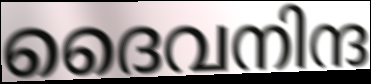
ദൈവനിന്ദ